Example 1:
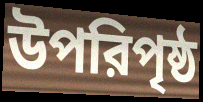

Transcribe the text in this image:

উপরিপৃষ্ঠ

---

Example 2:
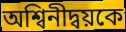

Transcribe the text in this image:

অশ্বিনীদ্বয়কে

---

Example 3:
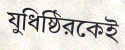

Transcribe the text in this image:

যুধিষ্ঠিরকেই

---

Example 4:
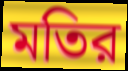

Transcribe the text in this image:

মতির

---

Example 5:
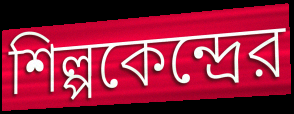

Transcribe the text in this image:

শিল্পকেন্দ্রের